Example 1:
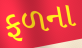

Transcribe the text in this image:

ફળના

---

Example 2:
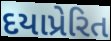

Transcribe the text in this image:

દયાપ્રેરિત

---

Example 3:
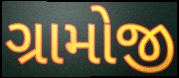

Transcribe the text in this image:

ગ્રામોજી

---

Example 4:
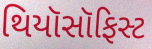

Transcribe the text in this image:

થિયૉસૉફિસ્ટ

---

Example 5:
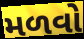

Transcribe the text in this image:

મળવો